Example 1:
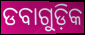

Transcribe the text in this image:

ଡବାଗୁଡ଼ିକ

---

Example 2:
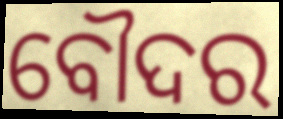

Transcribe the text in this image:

ବୌଦର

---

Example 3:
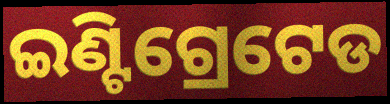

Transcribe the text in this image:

ଇଣ୍ଟିଗ୍ରେଟେଡ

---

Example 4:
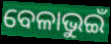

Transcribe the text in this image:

ବେଳାଭୁଇଁ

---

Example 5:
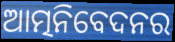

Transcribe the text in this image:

ଆତ୍ମନିବେଦନର